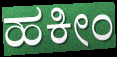
ಹಕೀಂ